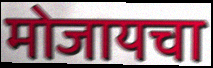
मोजायचा